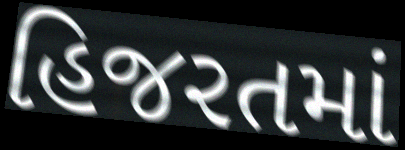
હિજરતમાં